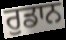
ਰੁਡਾਨ